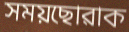
সময়ছোৱাক